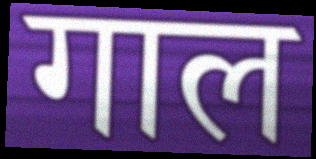
गाल